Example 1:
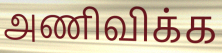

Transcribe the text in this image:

அணிவிக்க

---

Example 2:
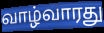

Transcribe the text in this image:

வாழ்வாரது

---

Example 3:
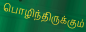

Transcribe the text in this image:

பொழிந்திருக்கும்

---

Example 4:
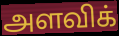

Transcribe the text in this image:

அளவிக்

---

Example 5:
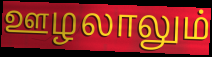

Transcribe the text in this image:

ஊழலாலும்